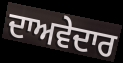
ਦਾਅਵੇਦਾਰ